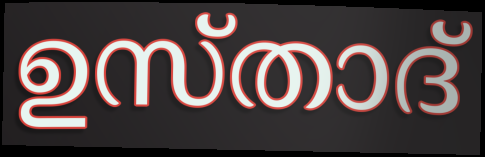
ഉസ്താദ്